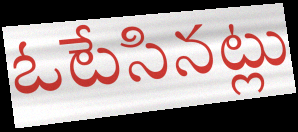
ఓటేసినట్లు